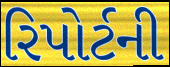
રિપોર્ટની